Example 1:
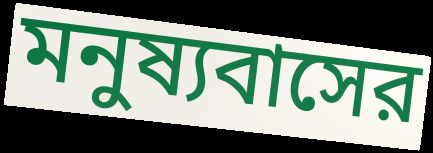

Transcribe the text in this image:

মনুষ্যবাসের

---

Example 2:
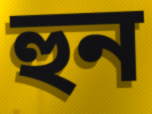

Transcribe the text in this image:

হুন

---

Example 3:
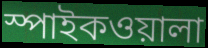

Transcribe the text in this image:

স্পাইকওয়ালা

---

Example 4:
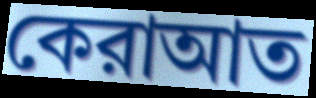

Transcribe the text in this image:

কেরাআত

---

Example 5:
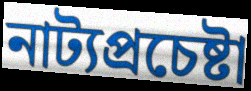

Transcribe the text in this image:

নাট্যপ্রচেষ্টা